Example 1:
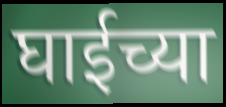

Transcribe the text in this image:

घाईच्या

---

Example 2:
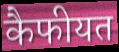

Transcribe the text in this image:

कैफीयत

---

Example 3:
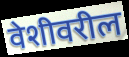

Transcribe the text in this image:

वेशीवरील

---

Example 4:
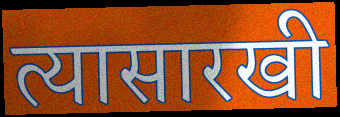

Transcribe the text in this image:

त्यासारखी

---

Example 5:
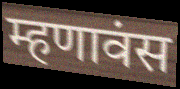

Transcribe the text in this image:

म्हणावंस